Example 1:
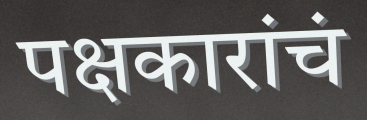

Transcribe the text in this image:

पक्षकारांचं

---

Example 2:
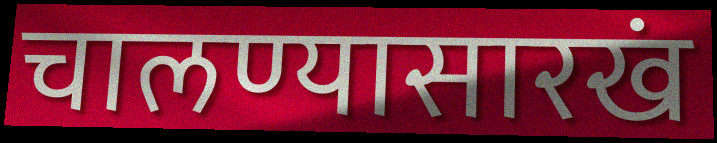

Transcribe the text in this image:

चालण्यासारखं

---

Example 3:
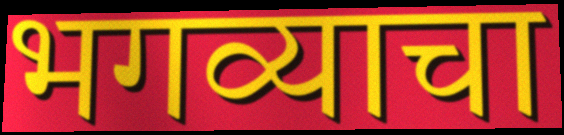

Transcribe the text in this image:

भगव्याचा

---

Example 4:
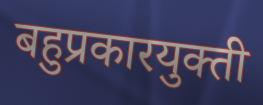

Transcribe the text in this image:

बहुप्रकारयुक्ती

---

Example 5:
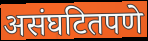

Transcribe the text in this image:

असंघटितपणे